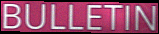
BULLETIN